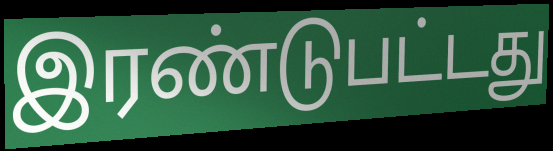
இரண்டுபட்டது